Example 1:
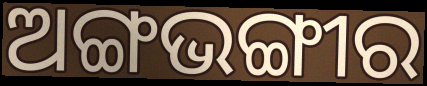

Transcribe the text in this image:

ଅଙ୍ଗଭଙ୍ଗୀର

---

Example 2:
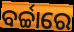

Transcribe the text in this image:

ବର୍ଚ୍ଚାରେ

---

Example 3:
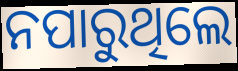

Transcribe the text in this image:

ନପାରୁଥିଲେ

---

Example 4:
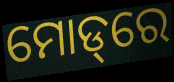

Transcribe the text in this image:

ମୋଡ୍‌ରେ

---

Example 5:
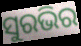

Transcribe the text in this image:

ସୁରଭିର